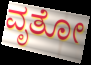
ವೃತೋ